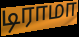
டிராமா